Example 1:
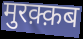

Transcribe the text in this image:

मुरक़्क़ब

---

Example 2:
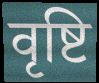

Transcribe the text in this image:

वृष्टि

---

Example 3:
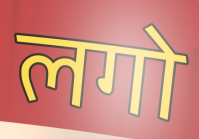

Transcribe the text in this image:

लगो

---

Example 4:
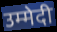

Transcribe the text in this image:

उम्मेदी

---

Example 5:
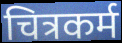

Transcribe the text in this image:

चित्रकर्म